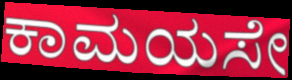
ಕಾಮಯಸೇ